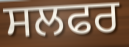
ਸਲਫਰ